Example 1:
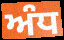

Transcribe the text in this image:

ਅੰਧ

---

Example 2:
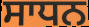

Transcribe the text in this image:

ਸਾਧਨ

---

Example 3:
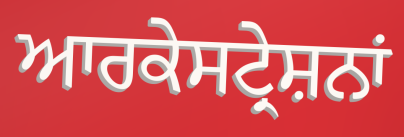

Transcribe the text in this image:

ਆਰਕੇਸਟ੍ਰੇਸ਼ਨਾਂ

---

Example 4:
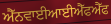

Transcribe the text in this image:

ਐੱਨਵਾਈਆਈਐੱਫਐੱਫ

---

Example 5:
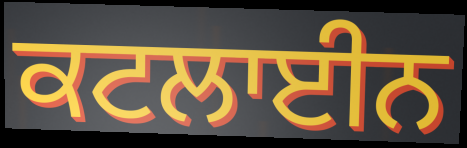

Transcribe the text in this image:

ਕਟਲਾਈਨ